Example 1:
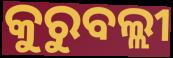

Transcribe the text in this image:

କୁରୁବଲ୍ଲୀ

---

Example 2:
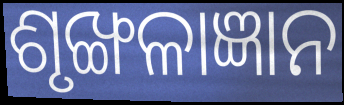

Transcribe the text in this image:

ଶୃଙ୍ଖଳାଜ୍ଞାନ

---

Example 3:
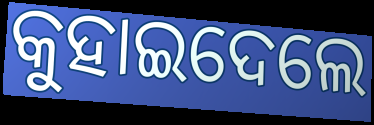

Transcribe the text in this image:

କୁହାଇଦେଲେ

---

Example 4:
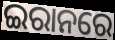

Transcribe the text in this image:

ଇରାନରେ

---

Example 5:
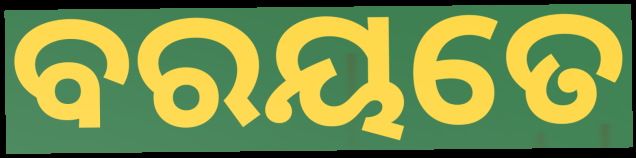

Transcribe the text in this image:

ବରୟତେ